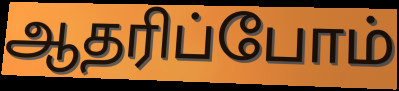
ஆதரிப்போம்